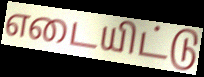
எடையிட்டு